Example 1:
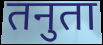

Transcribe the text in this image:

तनुता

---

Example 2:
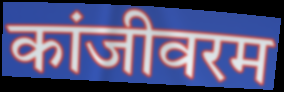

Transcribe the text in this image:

कांजीवरम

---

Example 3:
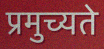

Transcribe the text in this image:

प्रमुच्यते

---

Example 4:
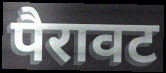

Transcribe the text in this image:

पैरावट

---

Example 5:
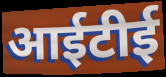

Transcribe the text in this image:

आईटीई